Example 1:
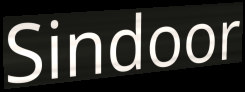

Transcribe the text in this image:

Sindoor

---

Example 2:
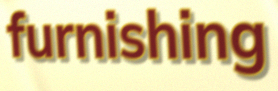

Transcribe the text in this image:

furnishing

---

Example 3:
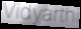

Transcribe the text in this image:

Vidyarthi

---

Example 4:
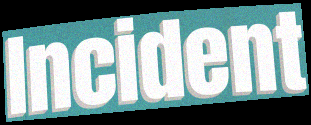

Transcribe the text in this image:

Incident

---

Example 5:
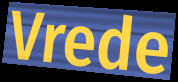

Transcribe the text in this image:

Vrede